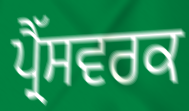
ਪ੍ਰੈੱਸਵਰਕ